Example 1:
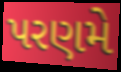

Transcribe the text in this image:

પરણમે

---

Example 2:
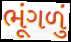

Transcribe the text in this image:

ભૂંગળું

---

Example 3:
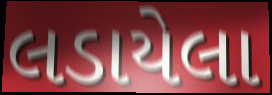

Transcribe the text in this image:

લડાયેલા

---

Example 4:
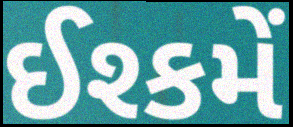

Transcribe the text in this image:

ઈશ્કમેં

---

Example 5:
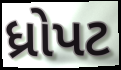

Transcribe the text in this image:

ધ્રોપટ